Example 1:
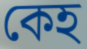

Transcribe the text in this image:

কেহ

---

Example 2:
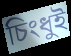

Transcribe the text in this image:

চিংধুই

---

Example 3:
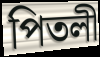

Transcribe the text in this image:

পিতলী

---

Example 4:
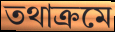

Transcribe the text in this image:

তথাক্ৰমে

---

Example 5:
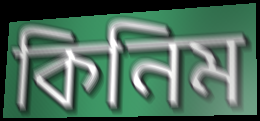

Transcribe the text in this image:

কিনিম